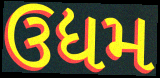
ઉદ્યમ